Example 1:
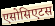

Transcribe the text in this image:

एसोसिएटस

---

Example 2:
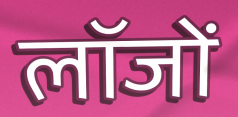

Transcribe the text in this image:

लॉजों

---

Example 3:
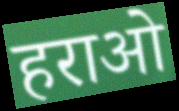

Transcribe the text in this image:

हराओ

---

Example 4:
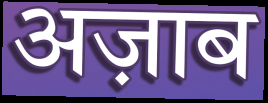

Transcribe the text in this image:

अज़ाब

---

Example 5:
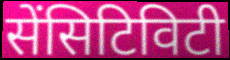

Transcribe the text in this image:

सेंसिटिविटी